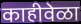
काहीवेळा